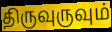
திருவுருவும்